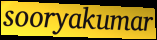
sooryakumar